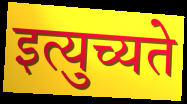
इत्युच्यते